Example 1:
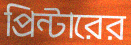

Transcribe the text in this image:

প্রিন্টারের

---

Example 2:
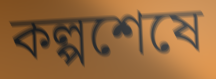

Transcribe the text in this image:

কল্পশেষে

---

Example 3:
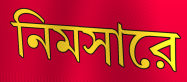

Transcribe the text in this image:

নিমসারে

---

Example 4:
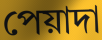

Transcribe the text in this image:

পেয়াদা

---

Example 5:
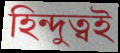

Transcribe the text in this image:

হিন্দুত্বই